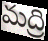
మద్రి